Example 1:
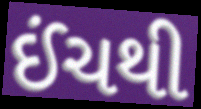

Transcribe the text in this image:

ઈંચથી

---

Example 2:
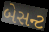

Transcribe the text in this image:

બેસન્ટ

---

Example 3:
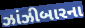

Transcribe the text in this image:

ઝાંઝીબારના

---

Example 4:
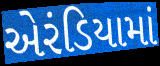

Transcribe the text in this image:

એરંડિયામાં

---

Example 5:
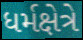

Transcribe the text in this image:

ધર્મક્ષેત્રે